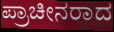
ಪ್ರಾಚೀನರಾದ